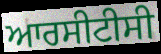
ਆਰਸੀਟੀਸੀ